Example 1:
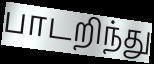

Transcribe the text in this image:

பாடறிந்து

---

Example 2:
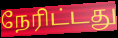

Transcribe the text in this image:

நேரிட்டது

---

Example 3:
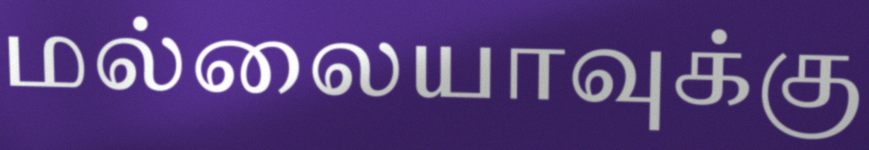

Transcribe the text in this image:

மல்லையாவுக்கு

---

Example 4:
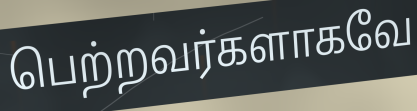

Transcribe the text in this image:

பெற்றவர்களாகவே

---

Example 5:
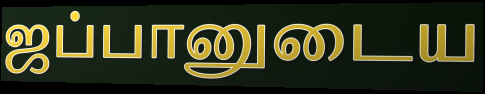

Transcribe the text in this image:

ஜப்பானுடைய